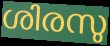
ശിരസു